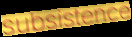
subsistence